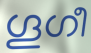
ഗൂഗീ